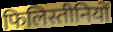
फिलिस्तीनियों